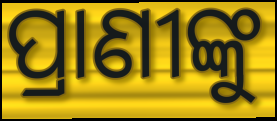
ପ୍ରାଣୀଙ୍କୁ